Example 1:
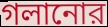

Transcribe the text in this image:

গলানোর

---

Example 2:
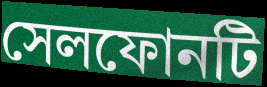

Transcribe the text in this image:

সেলফোনটি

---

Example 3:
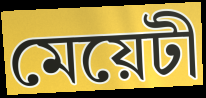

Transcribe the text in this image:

মেয়েটী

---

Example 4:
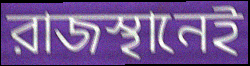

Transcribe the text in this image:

রাজস্থানেই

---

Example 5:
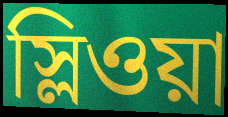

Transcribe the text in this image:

স্লিওয়া